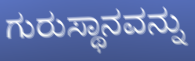
ಗುರುಸ್ಥಾನವನ್ನು